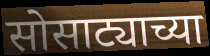
सोसाट्याच्या